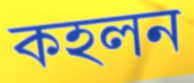
কহলন